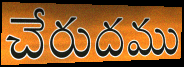
చేరుదము